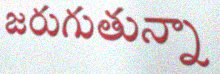
జరుగుతున్నా